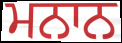
ਮਨਾਨ